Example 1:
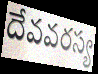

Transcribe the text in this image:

దేవవరస్య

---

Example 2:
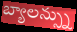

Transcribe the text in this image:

బ్యాలన్స్ను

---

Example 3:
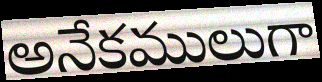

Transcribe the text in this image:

అనేకములుగా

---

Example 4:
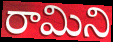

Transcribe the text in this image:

రామిని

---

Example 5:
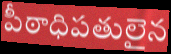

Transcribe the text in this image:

పీఠాధిపతులైన